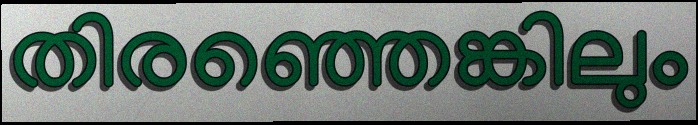
തിരഞ്ഞെങ്കിലും